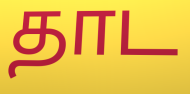
தாட